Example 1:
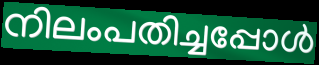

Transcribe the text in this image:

നിലംപതിച്ചപ്പോൾ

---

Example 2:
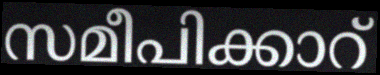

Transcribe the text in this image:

സമീപിക്കാറ്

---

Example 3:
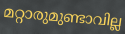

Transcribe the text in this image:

മറ്റാരുമുണ്ടാവില്ല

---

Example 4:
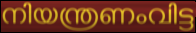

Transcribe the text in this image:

നിയന്ത്രണംവിട്ട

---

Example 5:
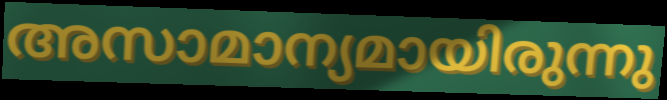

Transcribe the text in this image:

അസാമാന്യമായിരുന്നു